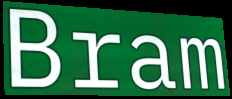
Bram